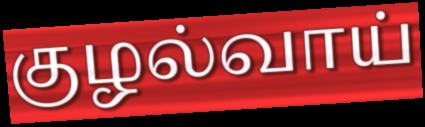
குழல்வாய்